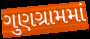
ગુણગ્રામમાં